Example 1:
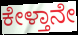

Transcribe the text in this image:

ಕೇಳ್ತಾನೇ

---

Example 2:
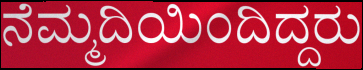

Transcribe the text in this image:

ನೆಮ್ಮದಿಯಿಂದಿದ್ದರು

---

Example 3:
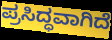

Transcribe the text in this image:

ಪ್ರಸಿದ್ಧವಾಗಿದೆ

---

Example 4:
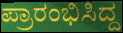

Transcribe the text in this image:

ಪ್ರಾರಂಭಿಸಿದ್ದ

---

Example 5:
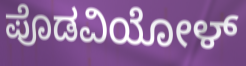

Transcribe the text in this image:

ಪೊಡವಿಯೋಳ್